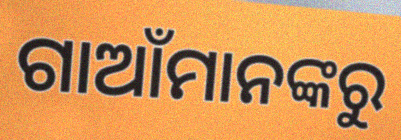
ଗାଆଁମାନଙ୍କରୁ